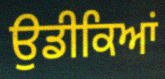
ਉਡੀਕਿਆਂ